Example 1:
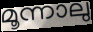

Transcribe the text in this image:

മൂന്നാലു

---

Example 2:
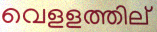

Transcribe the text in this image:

വെളളത്തില്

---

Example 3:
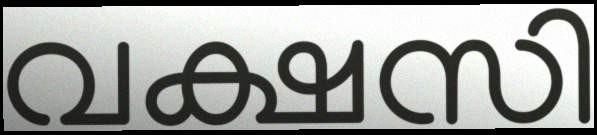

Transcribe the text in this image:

വക്ഷസി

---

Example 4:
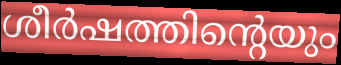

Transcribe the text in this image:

ശീർഷത്തിന്റെയും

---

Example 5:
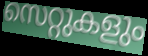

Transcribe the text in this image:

സെറ്റുകളും